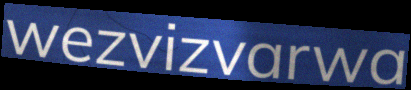
wezvizvarwa